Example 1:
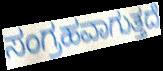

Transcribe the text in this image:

ಸಂಗ್ರಹವಾಗುತ್ತದೆ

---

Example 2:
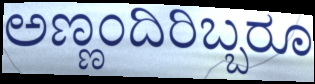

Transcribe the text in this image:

ಅಣ್ಣಂದಿರಿಬ್ಬರೂ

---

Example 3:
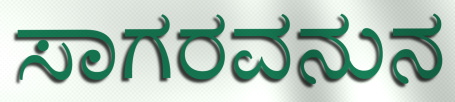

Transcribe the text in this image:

ಸಾಗರವನುನ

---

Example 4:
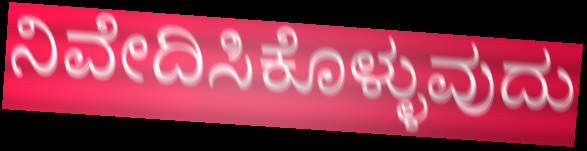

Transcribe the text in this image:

ನಿವೇದಿಸಿಕೊಳ್ಳುವುದು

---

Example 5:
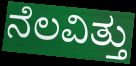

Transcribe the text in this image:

ನೆಲವಿತ್ತು